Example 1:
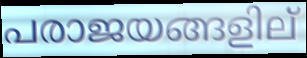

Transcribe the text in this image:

പരാജയങ്ങളില്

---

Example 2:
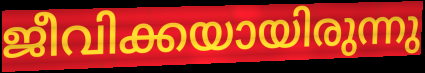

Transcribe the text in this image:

ജീവിക്കയായിരുന്നു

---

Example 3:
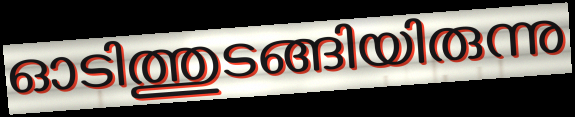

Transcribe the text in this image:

ഓടിത്തുടങ്ങിയിരുന്നു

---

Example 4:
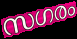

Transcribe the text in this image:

സഗരം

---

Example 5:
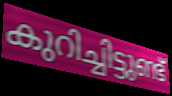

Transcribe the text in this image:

കുറിച്ചിട്ടുണ്ട്